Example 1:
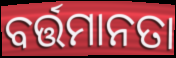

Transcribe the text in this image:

ବର୍ତ୍ତମାନତା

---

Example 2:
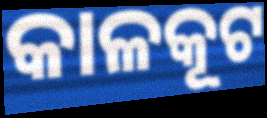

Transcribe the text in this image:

କାଳକୂଟ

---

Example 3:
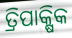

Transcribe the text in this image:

ତ୍ରିପାକ୍ଷିକ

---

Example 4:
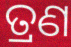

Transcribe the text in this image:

ତ୍ରଣ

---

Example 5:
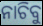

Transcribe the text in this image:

ନାଚିବୁ